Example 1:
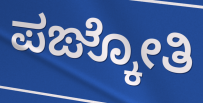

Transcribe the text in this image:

ಪಙ್ಕೋತಿ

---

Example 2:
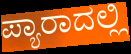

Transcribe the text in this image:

ಪ್ಯಾರಾದಲ್ಲಿ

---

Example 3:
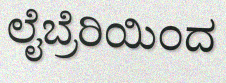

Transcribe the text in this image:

ಲೈಬ್ರೆರಿಯಿಂದ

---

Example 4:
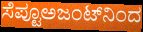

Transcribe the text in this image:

ಸೆಪ್ಟೂಅಜಂಟ್‌ನಿಂದ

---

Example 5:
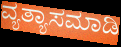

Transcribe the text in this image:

ವ್ಯತ್ಯಾಸಮಾಡಿ